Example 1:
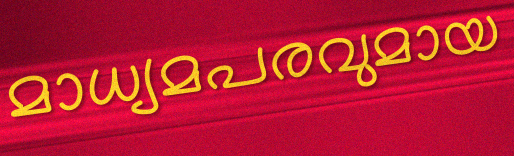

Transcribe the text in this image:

മാധ്യമപരവുമായ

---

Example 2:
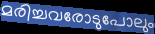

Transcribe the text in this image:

മരിച്ചവരോടുപോലും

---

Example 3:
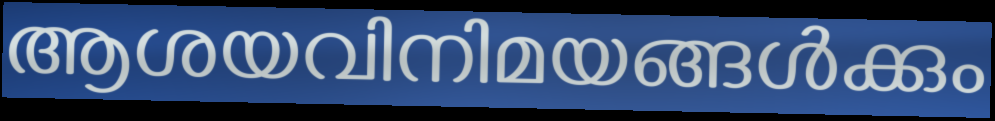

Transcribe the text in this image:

ആശയവിനിമയങ്ങൾക്കും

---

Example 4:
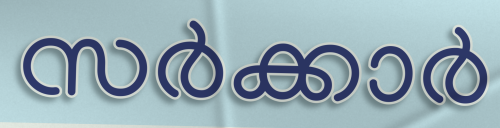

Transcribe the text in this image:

സർക്കാർ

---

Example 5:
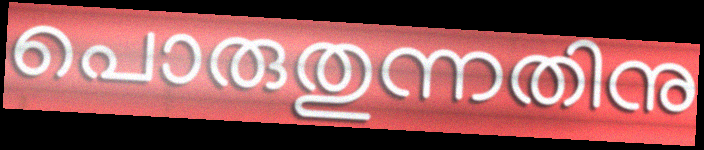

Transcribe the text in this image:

പൊരുതുന്നതിനു